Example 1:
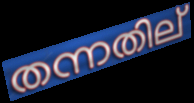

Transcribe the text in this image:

തന്നതില്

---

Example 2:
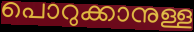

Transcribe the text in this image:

പൊറുക്കാനുള്ള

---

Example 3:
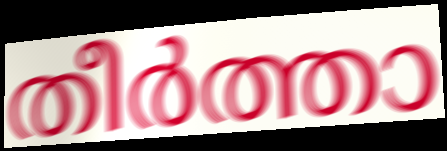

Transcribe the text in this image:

തീർത്താ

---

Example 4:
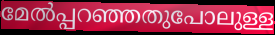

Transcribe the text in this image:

മേൽപ്പറഞ്ഞതുപോലുള്ള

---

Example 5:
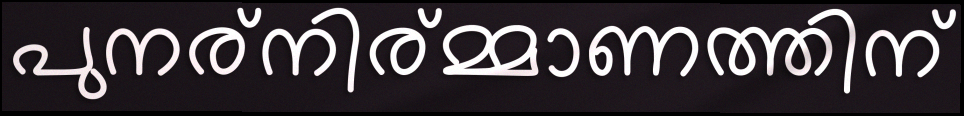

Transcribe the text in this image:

പുനര്നിര്മ്മാണത്തിന്